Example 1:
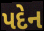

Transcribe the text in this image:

પદેન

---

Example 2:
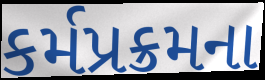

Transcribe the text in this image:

કર્મપ્રક્રમના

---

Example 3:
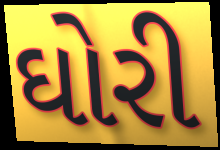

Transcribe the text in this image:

ઘોરી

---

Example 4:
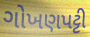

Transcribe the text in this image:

ગોખણપટ્ટી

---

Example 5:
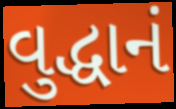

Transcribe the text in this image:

વુદ્ધાનં